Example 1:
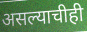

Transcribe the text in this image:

असल्याचीही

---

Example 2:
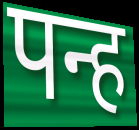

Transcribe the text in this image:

पन्ह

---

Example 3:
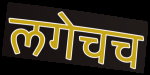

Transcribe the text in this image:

लगेचच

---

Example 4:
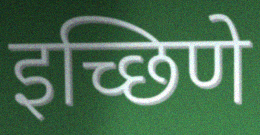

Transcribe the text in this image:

इच्छिणे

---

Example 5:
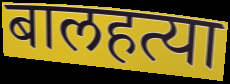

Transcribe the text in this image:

बालहत्या